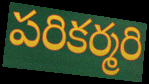
పరికర్మరి